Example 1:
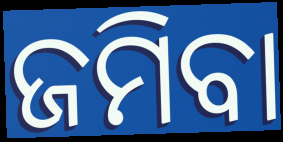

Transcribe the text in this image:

ଜମିବା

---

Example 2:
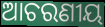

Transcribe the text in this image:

ଆଚରଣୀୟ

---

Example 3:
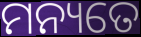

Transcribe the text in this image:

ମନ୍ୟତେ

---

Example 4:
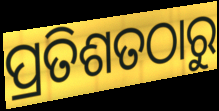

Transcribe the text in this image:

ପ୍ରତିଶତଠାରୁ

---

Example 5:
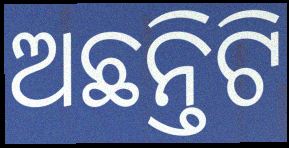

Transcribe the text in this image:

ଅଛନ୍ତିଟି